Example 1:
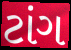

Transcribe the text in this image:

ટાંગ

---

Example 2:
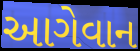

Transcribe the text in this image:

આગેવાન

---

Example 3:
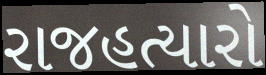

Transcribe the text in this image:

રાજહત્યારો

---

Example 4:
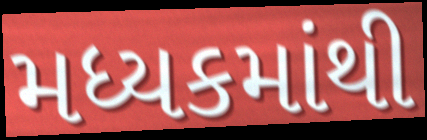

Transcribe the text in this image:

મધ્યકમાંથી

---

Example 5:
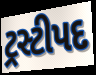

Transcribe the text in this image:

ટ્રસ્ટીપદ